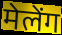
मेलेंग